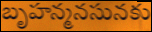
బృహన్మనసునకు